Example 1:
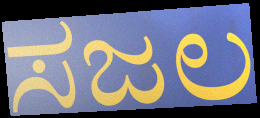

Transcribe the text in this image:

ಸಜಲ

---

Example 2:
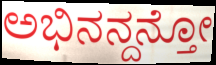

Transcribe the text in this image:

ಅಭಿನನ್ದನ್ತೋ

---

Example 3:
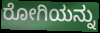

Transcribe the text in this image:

ರೋಗಿಯನ್ನು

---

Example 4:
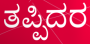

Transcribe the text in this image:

ತಪ್ಪಿದರ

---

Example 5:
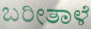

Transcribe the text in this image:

ಬರೀತಾಳೆ